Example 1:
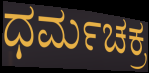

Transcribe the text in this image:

ಧರ್ಮಚಕ್ರ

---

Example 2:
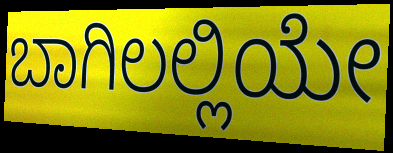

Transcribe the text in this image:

ಬಾಗಿಲಲ್ಲಿಯೇ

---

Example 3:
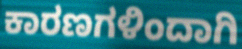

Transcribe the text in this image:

ಕಾರಣಗಳಿಂದಾಗಿ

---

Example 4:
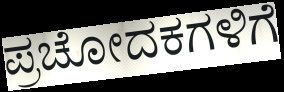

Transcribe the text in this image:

ಪ್ರಚೋದಕಗಳಿಗೆ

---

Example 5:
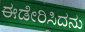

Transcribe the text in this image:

ಈಡೇರಿಸಿದನು